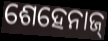
ଶେହେନାଜ୍